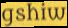
gshiw